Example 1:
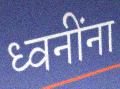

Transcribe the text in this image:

ध्वनींना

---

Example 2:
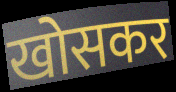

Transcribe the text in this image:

खोसकर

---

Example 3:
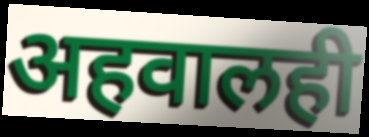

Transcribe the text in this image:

अहवालही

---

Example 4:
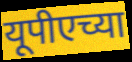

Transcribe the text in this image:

यूपीएच्या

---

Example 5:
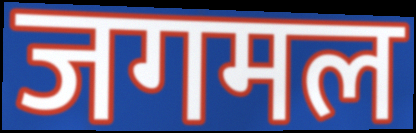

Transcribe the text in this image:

जगमल